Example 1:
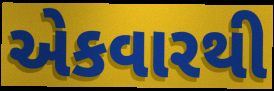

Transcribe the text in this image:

એકવારથી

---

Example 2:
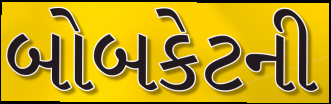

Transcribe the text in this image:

બોબકેટની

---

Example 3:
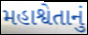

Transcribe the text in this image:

મહાશ્વેતાનું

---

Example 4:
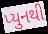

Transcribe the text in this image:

પ્યુનથી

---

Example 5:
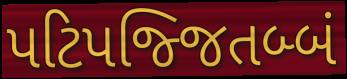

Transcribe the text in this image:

પટિપજ્જિતબ્બં